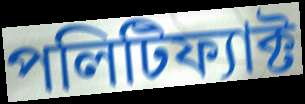
পলিটিফ্যাক্ট